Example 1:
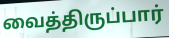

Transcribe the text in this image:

வைத்திருப்பார்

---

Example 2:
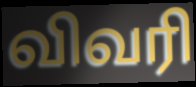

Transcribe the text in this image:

விவரி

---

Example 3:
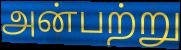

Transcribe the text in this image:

அன்பற்று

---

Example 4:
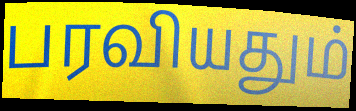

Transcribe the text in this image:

பரவியதும்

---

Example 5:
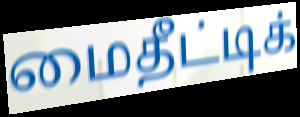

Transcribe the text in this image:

மைதீட்டிக்